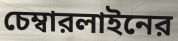
চেম্বারলাইনের